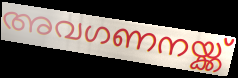
അവഗണനയ്ക്ക്